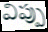
విప్పు